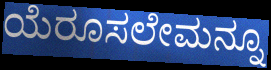
ಯೆರೂಸಲೇಮನ್ನೂ